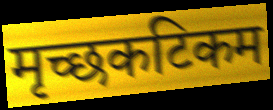
मृच्छकटिकम